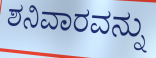
ಶನಿವಾರವನ್ನು